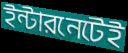
ইন্টারনেটেই